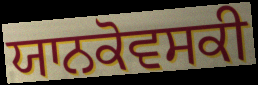
ਯਾਨਕੋਵਸਕੀ